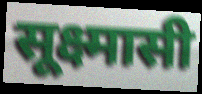
सूक्ष्मासी